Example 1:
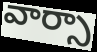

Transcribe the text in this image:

వార్సా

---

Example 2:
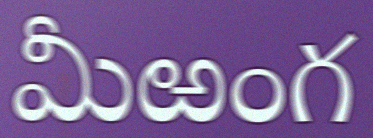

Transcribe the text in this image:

మీఱంగ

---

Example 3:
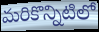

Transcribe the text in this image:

మరికొన్నిటిలో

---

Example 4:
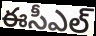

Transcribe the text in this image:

ఈసీఎల్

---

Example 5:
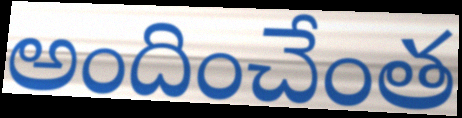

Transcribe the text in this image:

అందించేంత